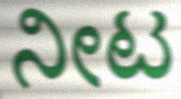
ನೀಟ